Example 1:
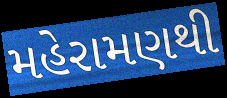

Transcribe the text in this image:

મહેરામણથી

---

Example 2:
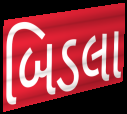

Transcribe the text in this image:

બિડલા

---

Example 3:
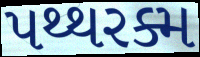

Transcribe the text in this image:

પથ્થરક્મ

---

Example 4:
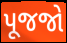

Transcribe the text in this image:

પૂજજો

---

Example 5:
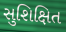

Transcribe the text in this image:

સુશિક્ષિત